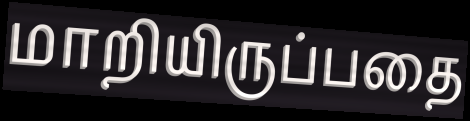
மாறியிருப்பதை